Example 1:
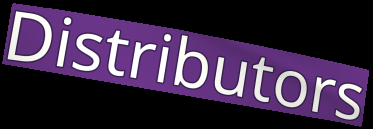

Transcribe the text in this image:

Distributors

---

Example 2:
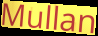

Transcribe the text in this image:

Mullan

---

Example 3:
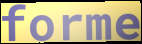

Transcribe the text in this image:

forme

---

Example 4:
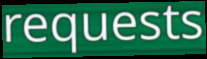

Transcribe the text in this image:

requests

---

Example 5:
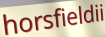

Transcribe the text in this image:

horsfieldii